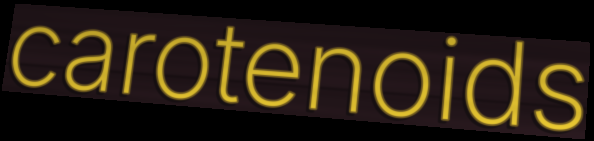
carotenoids